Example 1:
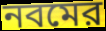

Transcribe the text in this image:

নবমের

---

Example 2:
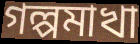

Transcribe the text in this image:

গল্পমাখা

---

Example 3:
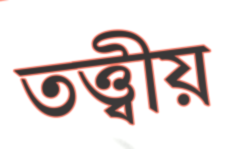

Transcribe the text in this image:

তত্ত্বীয়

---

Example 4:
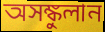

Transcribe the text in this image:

অসঙ্কুলান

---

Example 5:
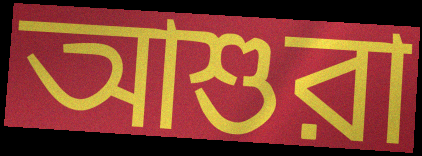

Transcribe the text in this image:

আশুরা